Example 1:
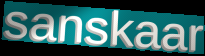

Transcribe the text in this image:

sanskaar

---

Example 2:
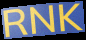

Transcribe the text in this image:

RNK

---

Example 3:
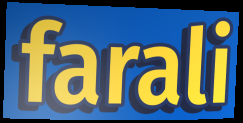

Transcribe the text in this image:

farali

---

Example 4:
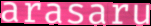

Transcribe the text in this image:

arasaru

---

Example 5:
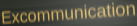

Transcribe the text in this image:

Excommunication